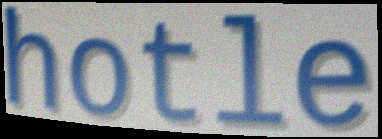
hotle